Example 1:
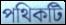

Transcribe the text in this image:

পথিকটি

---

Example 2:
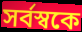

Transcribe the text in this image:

সর্বস্বকে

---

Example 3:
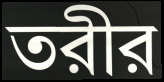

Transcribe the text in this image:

তরীর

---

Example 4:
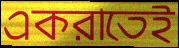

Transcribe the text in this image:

একরাতেই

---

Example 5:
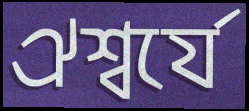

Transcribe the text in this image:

ঐশ্বর্যে